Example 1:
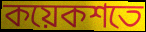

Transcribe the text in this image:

কয়েকশতে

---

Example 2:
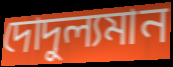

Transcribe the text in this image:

দোদুল্যমান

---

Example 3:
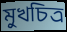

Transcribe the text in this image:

মুখচিত্র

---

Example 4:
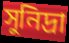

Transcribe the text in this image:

সুনিদ্রা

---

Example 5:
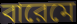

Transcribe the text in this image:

বারেমে